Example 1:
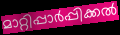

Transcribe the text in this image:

മാറ്റിപ്പാർപ്പിക്കൽ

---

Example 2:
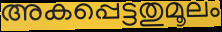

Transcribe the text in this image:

അകപ്പെട്ടതുമൂലം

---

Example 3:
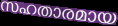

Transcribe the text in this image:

സഹതാരമായ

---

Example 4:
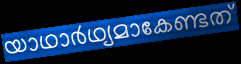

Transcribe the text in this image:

യാഥാർഥ്യമാകേണ്ടത്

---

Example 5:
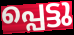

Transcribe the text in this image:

പ്പെട്ടു